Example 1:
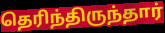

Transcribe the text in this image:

தெரிந்திருந்தார்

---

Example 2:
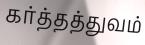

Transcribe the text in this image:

கர்த்தத்துவம்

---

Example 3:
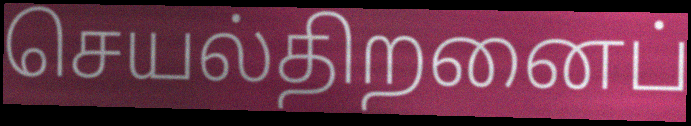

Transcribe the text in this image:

செயல்திறனைப்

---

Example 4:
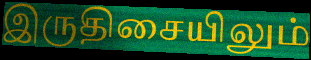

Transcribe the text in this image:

இருதிசையிலும்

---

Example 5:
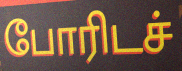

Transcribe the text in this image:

போரிடச்